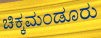
ಚಿಕ್ಕಮಂಡೂರು